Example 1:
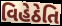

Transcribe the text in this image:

વિહેઠેતિ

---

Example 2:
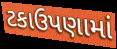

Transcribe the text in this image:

ટકાઉપણામાં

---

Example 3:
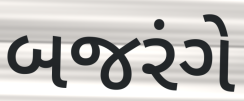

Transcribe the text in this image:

બજરંગે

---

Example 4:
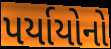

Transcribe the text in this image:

પર્યાયોનો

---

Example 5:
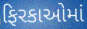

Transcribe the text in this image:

ફિરકાઓમાં